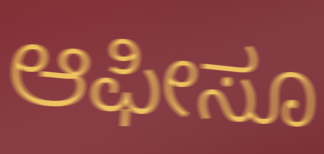
ಆಫೀಸೂ